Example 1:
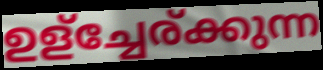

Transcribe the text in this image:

ഉള്ച്ചേര്ക്കുന്ന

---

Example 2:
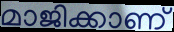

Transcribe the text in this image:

മാജിക്കാണ്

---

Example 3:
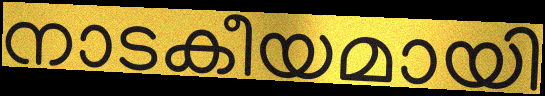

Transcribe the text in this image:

നാടകീയമായി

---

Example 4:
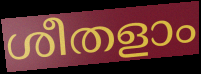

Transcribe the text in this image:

ശീതളാം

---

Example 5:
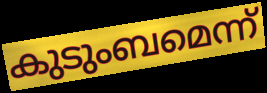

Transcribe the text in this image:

കുടുംബമെന്ന്